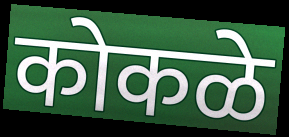
कोकळे